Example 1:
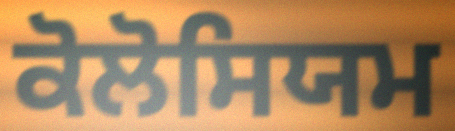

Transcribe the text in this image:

ਕੋਲੋਸਿਯਮ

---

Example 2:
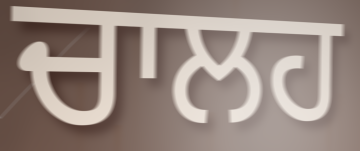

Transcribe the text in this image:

ਚਾਲਹ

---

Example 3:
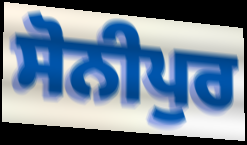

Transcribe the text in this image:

ਸੋਨੀਪੁਰ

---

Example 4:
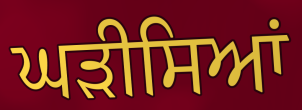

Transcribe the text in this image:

ਘੜੀਸਿਆਂ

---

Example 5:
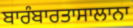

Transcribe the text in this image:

ਬਾਰੰਬਾਰਤਾਸਾਲਾਨਾ